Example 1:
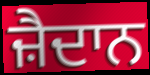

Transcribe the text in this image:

ਜ਼ੈਦਾਨ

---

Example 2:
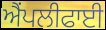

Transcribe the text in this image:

ਐਂਪਲੀਫਾਈ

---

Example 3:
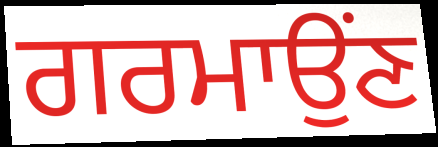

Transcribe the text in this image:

ਗਰਮਾਉਂਣ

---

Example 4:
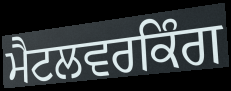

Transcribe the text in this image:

ਮੈਟਲਵਰਕਿੰਗ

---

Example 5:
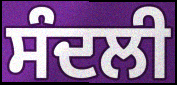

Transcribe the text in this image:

ਸੰਦਲੀ